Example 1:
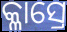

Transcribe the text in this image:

କ୍ଳାସ୍ରେ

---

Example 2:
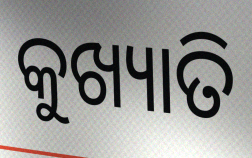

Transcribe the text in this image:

କୁଖ୍ୟାତି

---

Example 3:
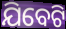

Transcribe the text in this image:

ଯିବେଟି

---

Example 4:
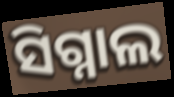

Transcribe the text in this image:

ସିଗ୍ନାଲ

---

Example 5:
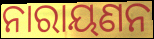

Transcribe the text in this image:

ନାରାୟଣନ